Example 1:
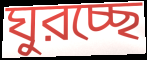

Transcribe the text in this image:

ঘুরচ্ছে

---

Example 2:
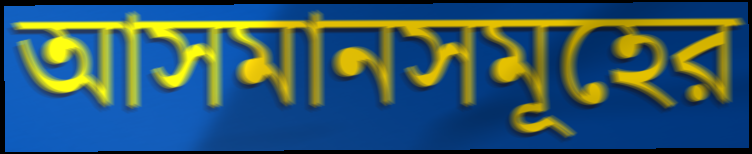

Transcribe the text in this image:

আসমানসমূহের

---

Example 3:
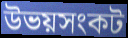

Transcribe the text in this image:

উভয়সংকট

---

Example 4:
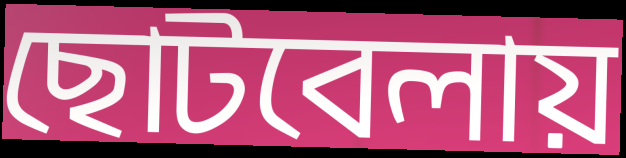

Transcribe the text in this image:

ছোটবেলায়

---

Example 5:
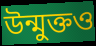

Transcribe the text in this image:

উন্মুক্তও